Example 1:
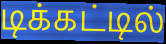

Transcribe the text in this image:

டிக்கட்டில்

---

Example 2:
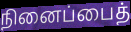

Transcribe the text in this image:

நினைப்பைத்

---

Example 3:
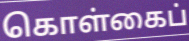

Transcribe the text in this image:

கொள்கைப்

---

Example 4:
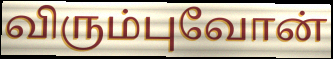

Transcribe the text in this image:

விரும்புவோன்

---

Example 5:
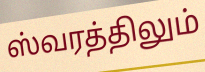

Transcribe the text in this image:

ஸ்வரத்திலும்